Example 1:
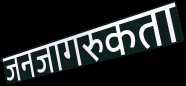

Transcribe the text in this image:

जनजागरुकता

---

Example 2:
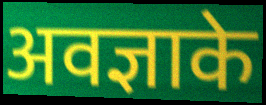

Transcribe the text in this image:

अवज्ञाके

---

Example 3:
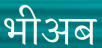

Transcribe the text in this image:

भीअब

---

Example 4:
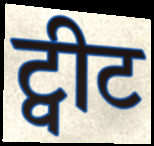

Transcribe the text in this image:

ट्वीट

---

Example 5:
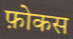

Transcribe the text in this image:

फ़ोकस